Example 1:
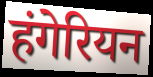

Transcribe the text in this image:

हंगेरियन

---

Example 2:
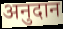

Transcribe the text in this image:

अनुदान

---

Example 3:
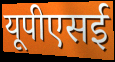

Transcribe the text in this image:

यूपीएसई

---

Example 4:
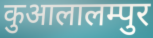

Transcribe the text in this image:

कुआलालम्पुर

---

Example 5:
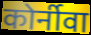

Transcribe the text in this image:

कोर्नीवा